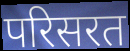
परिसरत